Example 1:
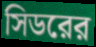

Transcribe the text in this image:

সিডরের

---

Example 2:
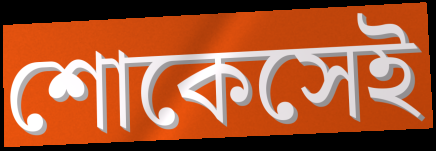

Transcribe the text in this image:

শোকেসেই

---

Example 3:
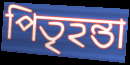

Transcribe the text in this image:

পিতৃহন্তা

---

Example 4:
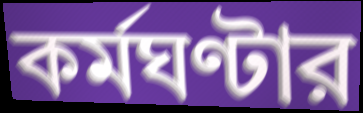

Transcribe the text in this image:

কর্মঘণ্টার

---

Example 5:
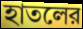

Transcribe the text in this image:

হাতলের